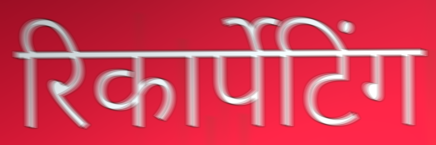
रिकार्पेटिंग